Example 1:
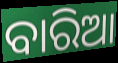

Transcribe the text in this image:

ବାରିଆ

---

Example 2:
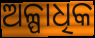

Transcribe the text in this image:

ଅଳ୍ପାଧିକ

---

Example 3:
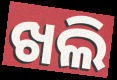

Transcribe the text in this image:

ଖଲି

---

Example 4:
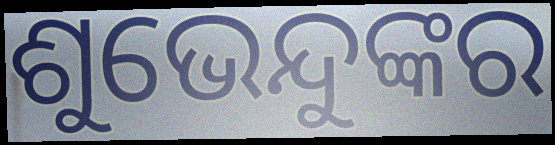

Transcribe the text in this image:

ଶୁଭେନ୍ଦୁଙ୍କର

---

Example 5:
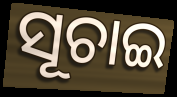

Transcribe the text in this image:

ସୂଚାଇ